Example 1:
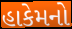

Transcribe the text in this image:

હાકેમનો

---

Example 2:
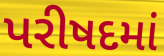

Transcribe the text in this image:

પરીષદમાં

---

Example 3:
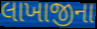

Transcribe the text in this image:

લાખાજીના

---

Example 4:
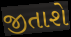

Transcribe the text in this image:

જીતાશે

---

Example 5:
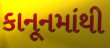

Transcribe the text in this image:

કાનૂનમાંથી